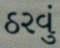
ઠરવું